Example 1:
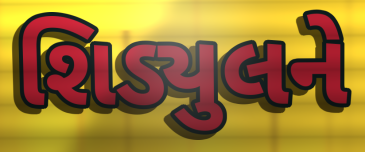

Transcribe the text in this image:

શિડ્યુલને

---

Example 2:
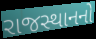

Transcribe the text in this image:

રાજસ્થાનનો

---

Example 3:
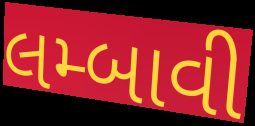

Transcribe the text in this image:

લમ્બાવી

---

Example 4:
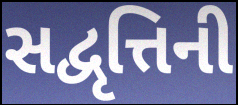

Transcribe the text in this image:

સદ્વૃત્તિની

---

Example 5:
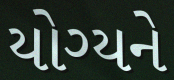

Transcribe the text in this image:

યોગ્યને